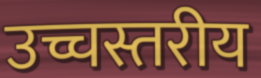
उच्चस्तरीय